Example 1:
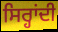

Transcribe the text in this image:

ਸਿਰ੍ਹਾਂਦੀ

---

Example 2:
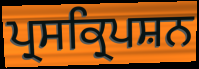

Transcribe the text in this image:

ਪ੍ਰਸਕ੍ਰਿਪਸ਼ਨ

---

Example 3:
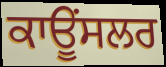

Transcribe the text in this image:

ਕਾਊਂਸਲਰ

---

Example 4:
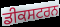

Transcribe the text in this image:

ਡੀਕਸਟਰਨ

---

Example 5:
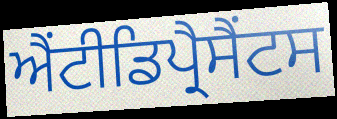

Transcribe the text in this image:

ਐਂਟੀਡਿਪ੍ਰੈਸੈਂਟਸ